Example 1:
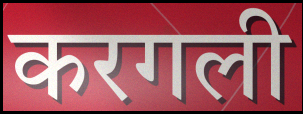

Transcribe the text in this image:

करगली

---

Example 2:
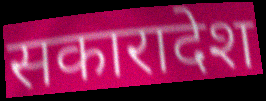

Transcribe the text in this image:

सकारादेश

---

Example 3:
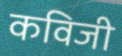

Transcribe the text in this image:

कविजी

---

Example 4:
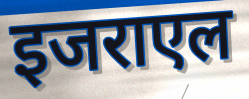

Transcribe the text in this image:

इजराएल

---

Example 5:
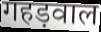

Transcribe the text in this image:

गहड़वाल